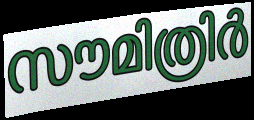
സൗമിത്രിർ